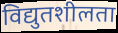
विद्युतशीलता